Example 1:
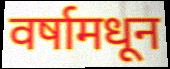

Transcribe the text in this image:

वर्षामधून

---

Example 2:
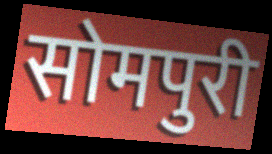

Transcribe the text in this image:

सोमपुरी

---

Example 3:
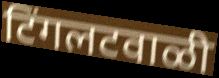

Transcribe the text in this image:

टिंगलटवाळी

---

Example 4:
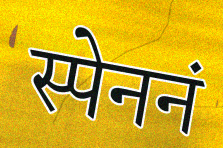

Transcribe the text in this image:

स्पेननं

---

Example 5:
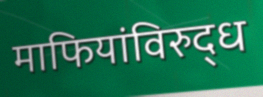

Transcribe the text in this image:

माफियांविरुद्ध